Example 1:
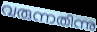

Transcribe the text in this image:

വരുന്നതിന്നു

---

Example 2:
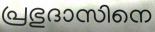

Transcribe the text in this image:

പ്രഭുദാസിനെ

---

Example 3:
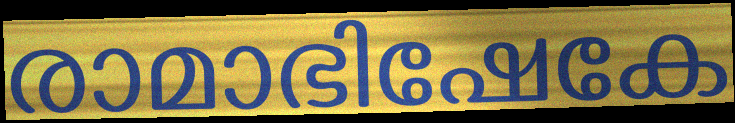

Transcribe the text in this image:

രാമാഭിഷേകേ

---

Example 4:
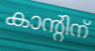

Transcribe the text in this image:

കാന്റിന്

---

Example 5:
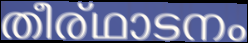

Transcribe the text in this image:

തീര്ഥാടനം